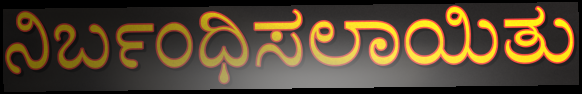
ನಿರ್ಬಂಧಿಸಲಾಯಿತು